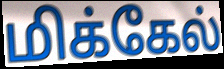
மிக்கேல்